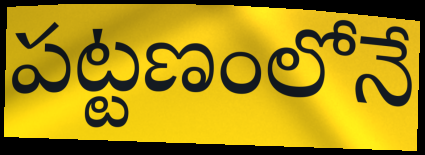
పట్టణంలోనే